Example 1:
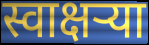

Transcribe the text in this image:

स्वाक्षऱ्या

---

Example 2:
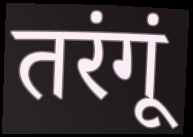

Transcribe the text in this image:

तरंगूं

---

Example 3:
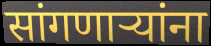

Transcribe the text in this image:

सांगणार्‍यांना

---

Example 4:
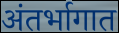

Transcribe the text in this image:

अंतर्भागात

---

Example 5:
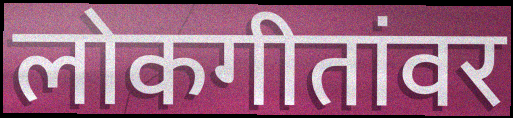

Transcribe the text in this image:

लोकगीतांवर